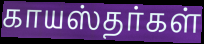
காயஸ்தர்கள்